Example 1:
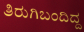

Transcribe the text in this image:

ತಿರುಗಿಬಂದಿದ್ದ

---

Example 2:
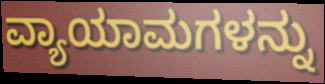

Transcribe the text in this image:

ವ್ಯಾಯಾಮಗಳನ್ನು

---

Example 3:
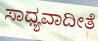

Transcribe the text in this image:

ಸಾಧ್ಯವಾದೀತೆ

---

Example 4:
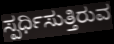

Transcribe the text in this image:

ಸ್ಪರ್ಧಿಸುತ್ತಿರುವ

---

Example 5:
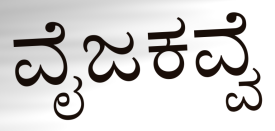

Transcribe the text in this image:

ವೈಜಕವ್ವೆ